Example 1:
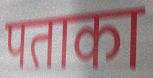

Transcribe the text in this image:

पताका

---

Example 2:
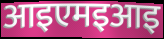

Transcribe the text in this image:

आइएमइआइ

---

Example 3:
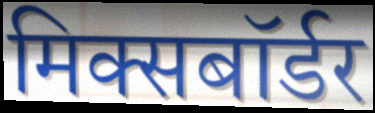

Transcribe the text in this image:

मिक्सबॉर्डर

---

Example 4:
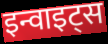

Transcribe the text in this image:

इन्वाइट्स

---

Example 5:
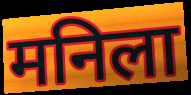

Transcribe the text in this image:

मनिला